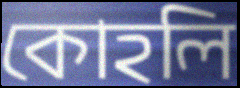
কোহলি